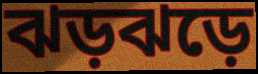
ঝড়ঝড়ে